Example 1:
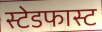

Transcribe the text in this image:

स्टेडफास्ट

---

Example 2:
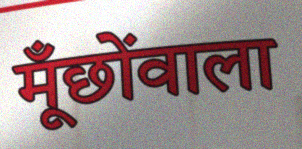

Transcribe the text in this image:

मूँछोंवाला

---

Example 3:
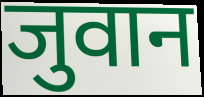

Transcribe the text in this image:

जुवान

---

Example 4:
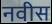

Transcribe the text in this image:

नवीस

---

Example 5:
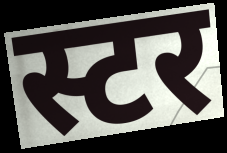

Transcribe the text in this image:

स्टर